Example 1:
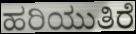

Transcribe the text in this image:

ಹರಿಯುತಿರೆ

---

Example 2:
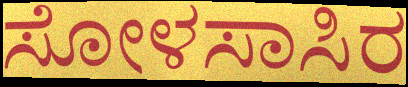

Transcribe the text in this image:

ಸೋಳಸಾಸಿರ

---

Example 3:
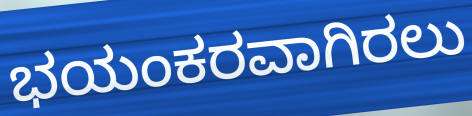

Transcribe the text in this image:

ಭಯಂಕರವಾಗಿರಲು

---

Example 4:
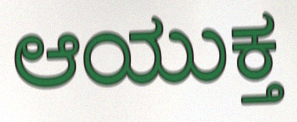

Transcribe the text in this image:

ಆಯುಕ್ತ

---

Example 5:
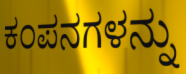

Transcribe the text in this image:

ಕಂಪನಗಳನ್ನು